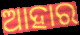
ଆହାର